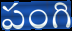
పంగి